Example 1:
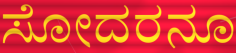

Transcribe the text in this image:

ಸೋದರನೂ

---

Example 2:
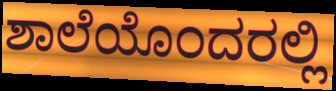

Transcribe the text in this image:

ಶಾಲೆಯೊಂದರಲ್ಲಿ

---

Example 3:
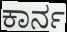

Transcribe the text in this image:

ಕಾರ್ನ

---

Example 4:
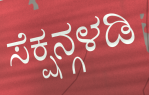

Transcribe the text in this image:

ಸೆಕ್ಷನ್ಗಳಡಿ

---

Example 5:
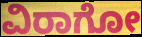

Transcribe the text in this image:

ವಿರಾಗೋ